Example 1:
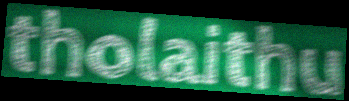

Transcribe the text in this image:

tholaithu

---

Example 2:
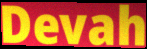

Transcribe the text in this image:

Devah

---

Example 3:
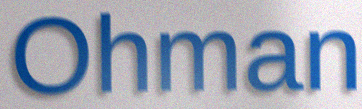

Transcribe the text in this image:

Ohman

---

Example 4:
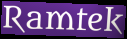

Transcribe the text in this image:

Ramtek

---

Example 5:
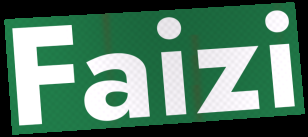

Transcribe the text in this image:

Faizi